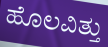
ಹೊಲವಿತ್ತು